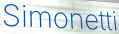
Simonetti